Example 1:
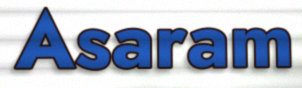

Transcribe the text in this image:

Asaram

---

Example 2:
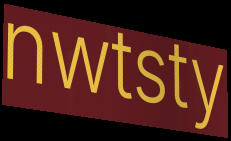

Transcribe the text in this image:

nwtsty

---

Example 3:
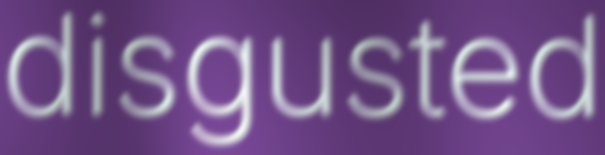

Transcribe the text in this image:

disgusted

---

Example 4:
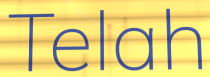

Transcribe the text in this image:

Telah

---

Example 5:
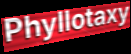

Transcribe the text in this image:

Phyllotaxy